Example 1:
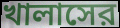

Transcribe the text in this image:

খালাসের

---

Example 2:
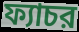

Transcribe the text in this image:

ফ্যাচর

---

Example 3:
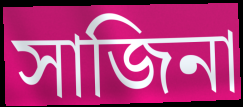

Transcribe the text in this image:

সাজিনা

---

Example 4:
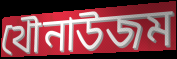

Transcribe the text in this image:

থৌনাউজম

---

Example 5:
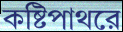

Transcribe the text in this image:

কষ্টিপাথরে